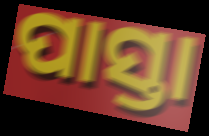
ପାସ୍ତା